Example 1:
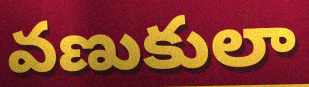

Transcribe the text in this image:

వణుకులా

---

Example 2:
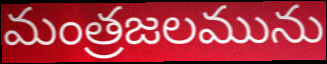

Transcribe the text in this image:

మంత్రజలమును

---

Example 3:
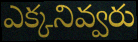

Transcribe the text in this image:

ఎక్కనివ్వరు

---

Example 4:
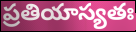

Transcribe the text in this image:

ప్రతియాస్యతః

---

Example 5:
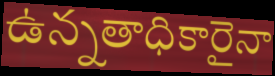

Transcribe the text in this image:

ఉన్నతాధికారైనా